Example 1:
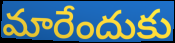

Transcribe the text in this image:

మారేందుకు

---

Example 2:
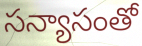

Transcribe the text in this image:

సన్యాసంతో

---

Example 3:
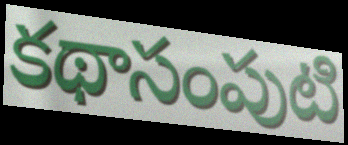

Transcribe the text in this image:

కథాసంపుటి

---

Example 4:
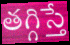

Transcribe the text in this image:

తగ్గిస్తే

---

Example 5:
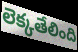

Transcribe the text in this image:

లెక్కతేలింది